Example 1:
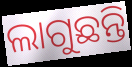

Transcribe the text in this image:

ଲାଗୁଛନ୍ତି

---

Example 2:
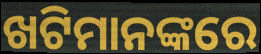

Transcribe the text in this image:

ଖଟିମାନଙ୍କରେ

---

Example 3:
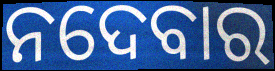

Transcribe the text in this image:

ନଦେବାର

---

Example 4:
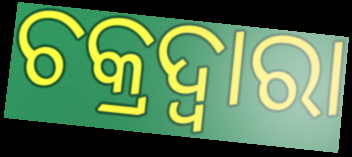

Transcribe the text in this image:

ଚକ୍ରଦ୍ୱାରା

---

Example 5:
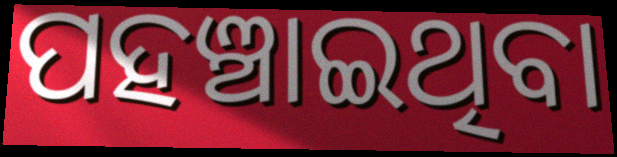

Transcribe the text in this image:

ପହଞ୍ଚାଇଥିବା